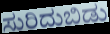
ಸುರಿದುಬಿಡು